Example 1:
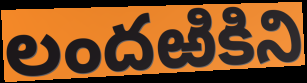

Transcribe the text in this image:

లందఱికిని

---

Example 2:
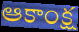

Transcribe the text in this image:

ఆకాంక్ష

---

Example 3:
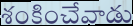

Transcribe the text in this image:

శంకించేవాడు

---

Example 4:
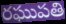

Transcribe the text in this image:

రఘుపతి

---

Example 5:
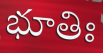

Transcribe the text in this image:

భూతిః